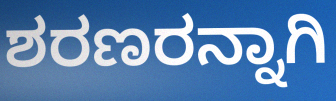
ಶರಣರನ್ನಾಗಿ